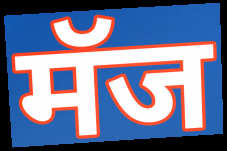
मॅज